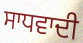
ਸਾਧਵਾਦੀ